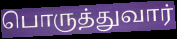
பொருத்துவார்